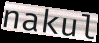
nakul